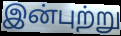
இன்புற்று